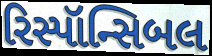
રિસ્પૉન્સિબલ